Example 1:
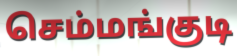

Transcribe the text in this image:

செம்மங்குடி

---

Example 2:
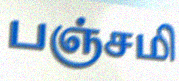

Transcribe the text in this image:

பஞ்சமி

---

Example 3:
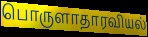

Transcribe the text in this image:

பொருளாதாரவியல்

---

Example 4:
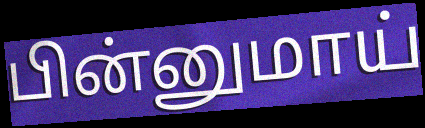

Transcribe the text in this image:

பின்னுமாய்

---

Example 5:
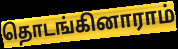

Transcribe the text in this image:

தொடங்கினாராம்